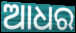
ଆଧର